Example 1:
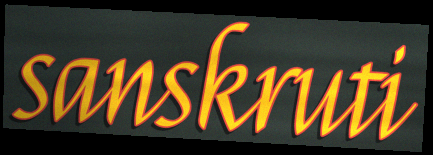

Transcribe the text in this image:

sanskruti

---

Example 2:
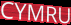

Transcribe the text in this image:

CYMRU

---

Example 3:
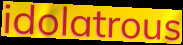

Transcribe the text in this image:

idolatrous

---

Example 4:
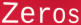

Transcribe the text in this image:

Zeros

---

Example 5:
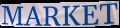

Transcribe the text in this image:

MARKET